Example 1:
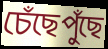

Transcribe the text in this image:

চেঁছেপুঁছে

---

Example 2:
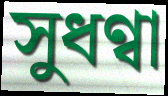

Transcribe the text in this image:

সুধণ্বা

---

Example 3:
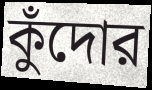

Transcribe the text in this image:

কুঁদোর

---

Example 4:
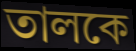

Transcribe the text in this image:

তালকে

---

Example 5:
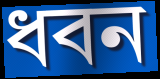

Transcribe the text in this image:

ধবন